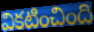
వికటించింది